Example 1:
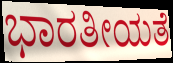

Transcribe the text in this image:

ಭಾರತೀಯತೆ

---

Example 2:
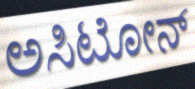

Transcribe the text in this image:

ಅಸಿಟೋನ್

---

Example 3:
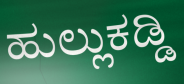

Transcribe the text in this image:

ಹುಲ್ಲುಕಡ್ಡಿ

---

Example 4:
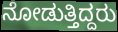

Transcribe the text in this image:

ನೋಡುತ್ತಿದ್ದರು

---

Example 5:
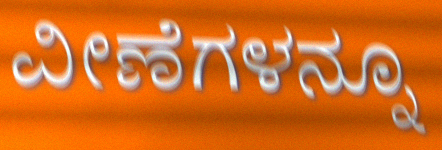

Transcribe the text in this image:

ವೀಣೆಗಳನ್ನೂ